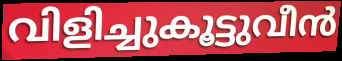
വിളിച്ചുകൂട്ടുവീൻ